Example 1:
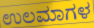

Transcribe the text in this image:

ಉಲಮಾಗಳ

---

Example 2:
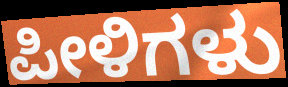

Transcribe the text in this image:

ಪೀಳಿಗಳು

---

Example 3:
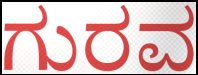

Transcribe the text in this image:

ಗುರವ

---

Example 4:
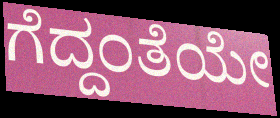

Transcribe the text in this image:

ಗೆದ್ದಂತೆಯೇ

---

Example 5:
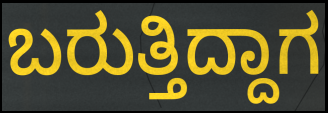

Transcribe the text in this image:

ಬರುತ್ತಿದ್ದಾಗ